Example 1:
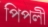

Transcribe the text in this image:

পিপলী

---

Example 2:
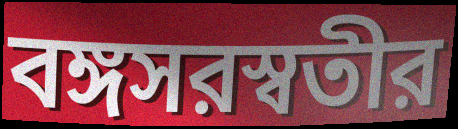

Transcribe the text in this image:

বঙ্গসরস্বতীর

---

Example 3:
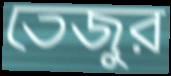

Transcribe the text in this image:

তেজুর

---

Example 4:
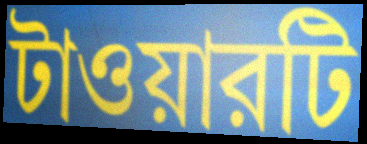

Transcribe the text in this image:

টাওয়ারটি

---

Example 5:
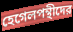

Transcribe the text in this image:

হেগেলপন্থীদের